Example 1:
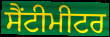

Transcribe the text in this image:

ਸੈਂਟੀਮੀਟਰ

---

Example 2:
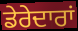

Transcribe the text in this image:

ਡੇਰੇਦਾਰਾਂ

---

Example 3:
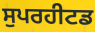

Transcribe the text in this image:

ਸੁਪਰਹੀਟਡ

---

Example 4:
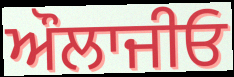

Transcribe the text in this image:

ਔਲਾਜੀਓ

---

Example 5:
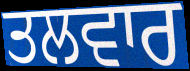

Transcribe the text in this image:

ਤਲਵਾਰ